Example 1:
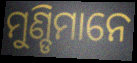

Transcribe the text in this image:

ମୁଣ୍ଡିମାନେ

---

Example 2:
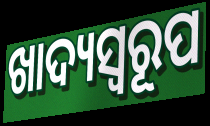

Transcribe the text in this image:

ଖାଦ୍ୟସ୍ୱରୂପ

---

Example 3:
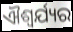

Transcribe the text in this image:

ଐଶ୍ୱର୍ଯ୍ୟର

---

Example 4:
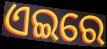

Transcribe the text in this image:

ଏଇରେ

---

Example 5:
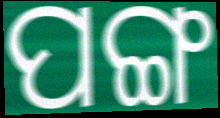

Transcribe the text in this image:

ପଙ୍ଗ